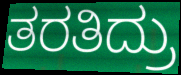
ತರತಿದ್ರು